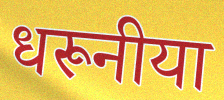
धरूनीया